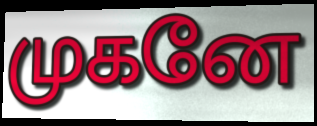
முகனே